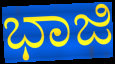
ಭಾಜಿ